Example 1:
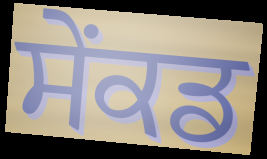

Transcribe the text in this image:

ਸੇਂਕਡ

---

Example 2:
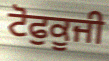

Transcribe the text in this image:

ਟੋਫੁਕੂਜੀ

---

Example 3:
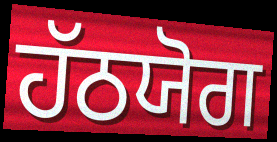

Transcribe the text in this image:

ਹੱਠਯੋਗ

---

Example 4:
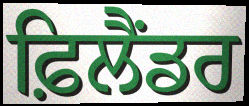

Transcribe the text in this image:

ਫ਼ਿਲੈਂਡਰ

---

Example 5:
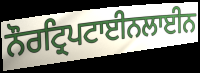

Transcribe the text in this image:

ਨੌਰਟ੍ਰਿਪਟਾਈਨਲਾਈਨ